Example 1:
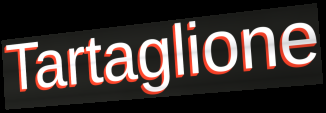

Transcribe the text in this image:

Tartaglione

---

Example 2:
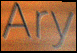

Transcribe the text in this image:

Ary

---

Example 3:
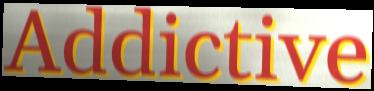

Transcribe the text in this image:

Addictive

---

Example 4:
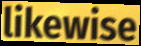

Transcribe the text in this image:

likewise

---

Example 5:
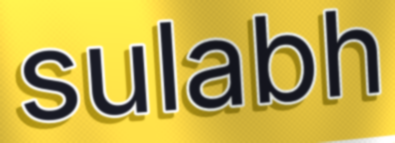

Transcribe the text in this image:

sulabh